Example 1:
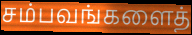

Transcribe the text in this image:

சம்பவங்களைத்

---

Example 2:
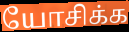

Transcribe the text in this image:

யோசிக்க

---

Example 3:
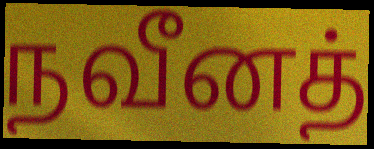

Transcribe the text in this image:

நவீனத்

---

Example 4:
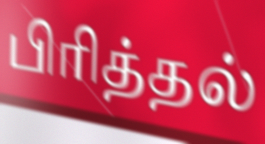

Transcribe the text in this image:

பிரித்தல்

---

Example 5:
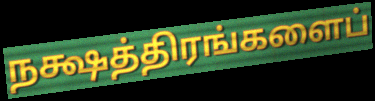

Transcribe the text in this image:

நக்ஷத்திரங்களைப்